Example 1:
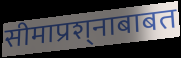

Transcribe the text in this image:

सीमाप्रश्नाबाबत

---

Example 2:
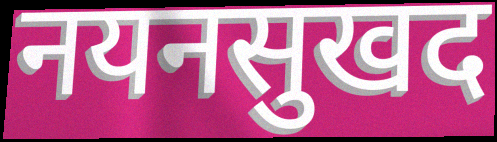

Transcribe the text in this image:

नयनसुखद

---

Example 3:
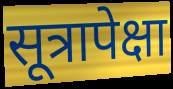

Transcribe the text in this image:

सूत्रापेक्षा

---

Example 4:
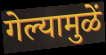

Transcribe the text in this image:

गेल्यामुळें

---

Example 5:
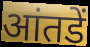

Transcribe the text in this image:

आंतडें